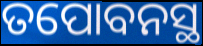
ତପୋବନସ୍ଥ